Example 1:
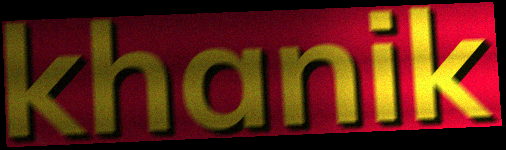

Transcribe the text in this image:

khanik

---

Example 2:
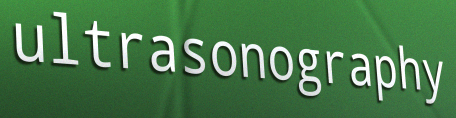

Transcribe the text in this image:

ultrasonography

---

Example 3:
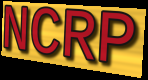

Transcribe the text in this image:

NCRP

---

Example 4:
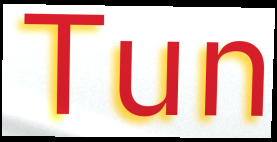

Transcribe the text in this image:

Tun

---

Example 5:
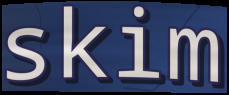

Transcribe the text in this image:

skim